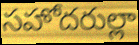
సహోదరుల్లా